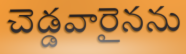
చెడ్డవారైనను